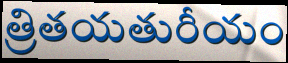
త్రితయతురీయం